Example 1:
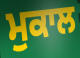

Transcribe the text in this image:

ਮੁਕਾਲ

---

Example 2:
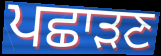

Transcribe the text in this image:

ਪਛਾੜਣ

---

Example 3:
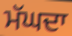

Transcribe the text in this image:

ਮੱਘਦਾ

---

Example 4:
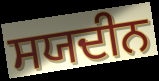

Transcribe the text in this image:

ਸਯਦੀਨ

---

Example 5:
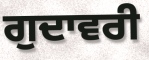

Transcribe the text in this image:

ਗੁਦਾਵਰੀ